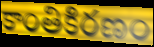
కాంతికిరణం